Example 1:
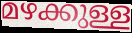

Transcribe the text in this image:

മഴക്കുള്ള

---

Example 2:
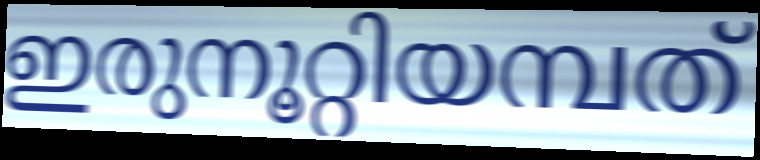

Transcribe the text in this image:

ഇരുനൂറ്റിയമ്പത്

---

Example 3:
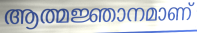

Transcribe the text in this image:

ആത്മജ്ഞാനമാണ്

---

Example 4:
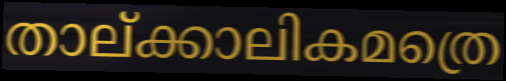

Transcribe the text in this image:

താല്ക്കാലികമത്രെ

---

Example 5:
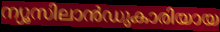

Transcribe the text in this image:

ന്യൂസിലാൻഡുകാരിയായ